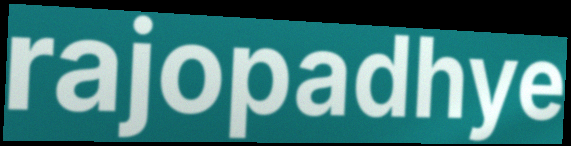
rajopadhye